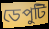
ডেপুটি